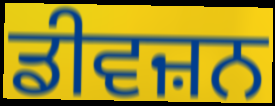
ਡੀਵਜ਼ਨ